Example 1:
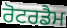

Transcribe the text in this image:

ਰੋਟਰਡੈਮ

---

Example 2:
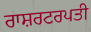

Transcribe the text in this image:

ਰਾਸ਼ਰਟਰਪਤੀ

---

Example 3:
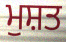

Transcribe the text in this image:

ਮੁਸ਼ਤ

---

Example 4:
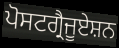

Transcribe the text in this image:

ਪੋਸਟਗ੍ਰੈਜੂਏਸ਼ਨ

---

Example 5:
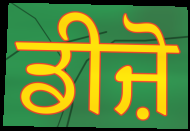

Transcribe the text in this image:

ਡੀਜ਼ੋ